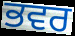
ਭਵਰ